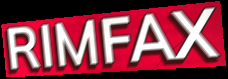
RIMFAX